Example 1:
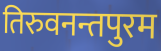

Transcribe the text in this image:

तिरुवनन्तपुरम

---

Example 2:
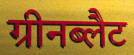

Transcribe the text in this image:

ग्रीनब्लैट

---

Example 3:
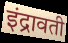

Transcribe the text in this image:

इंद्रावती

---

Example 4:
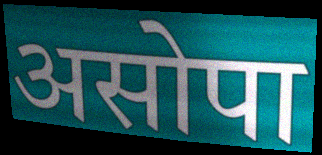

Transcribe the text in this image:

असोपा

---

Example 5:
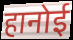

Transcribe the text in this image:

हानोई